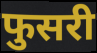
फुसरी